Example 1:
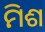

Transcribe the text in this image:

ମିଶ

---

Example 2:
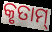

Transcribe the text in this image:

କୃତାମ୍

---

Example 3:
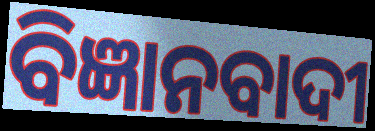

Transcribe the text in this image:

ବିଜ୍ଞାନବାଦୀ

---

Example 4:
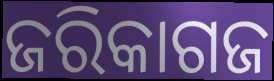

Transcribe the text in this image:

ଜରିକାଗଜ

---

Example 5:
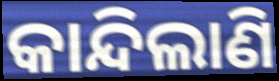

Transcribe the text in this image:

କାନ୍ଦିଲାଣି